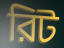
রিট